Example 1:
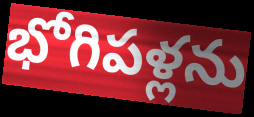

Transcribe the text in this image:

భోగిపళ్లను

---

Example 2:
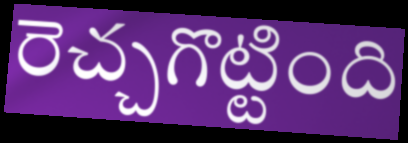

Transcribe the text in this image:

రెచ్చగొట్టింది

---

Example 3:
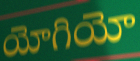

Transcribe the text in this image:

యోగియో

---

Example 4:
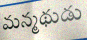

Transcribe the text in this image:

మన్మథుడు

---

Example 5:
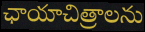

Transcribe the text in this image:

ఛాయాచిత్రాలను